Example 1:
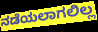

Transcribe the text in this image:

ನಡೆಯಲಾಗಲಿಲ್ಲ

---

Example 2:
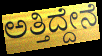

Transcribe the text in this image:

ಅತ್ತಿದ್ದೇನೆ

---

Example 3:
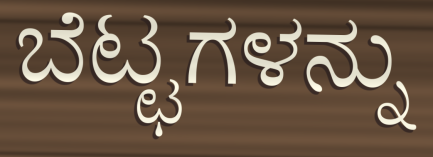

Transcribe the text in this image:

ಬೆಟ್ಟಗಳನ್ನು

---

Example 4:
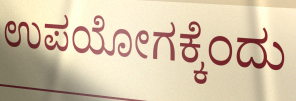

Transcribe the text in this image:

ಉಪಯೋಗಕ್ಕೆಂದು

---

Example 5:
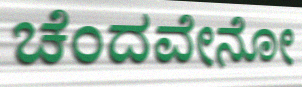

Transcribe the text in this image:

ಚೆಂದವೇನೋ